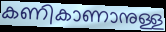
കണികാണാനുള്ള